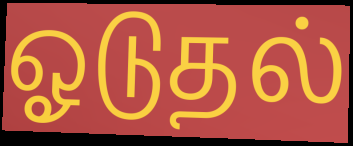
ஓடுதல்